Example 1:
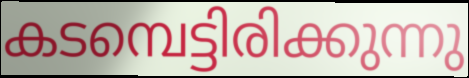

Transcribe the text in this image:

കടമ്പെട്ടിരിക്കുന്നു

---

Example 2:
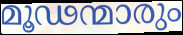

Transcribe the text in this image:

മൂഢന്മാരും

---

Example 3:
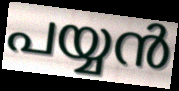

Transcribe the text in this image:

പയ്യൻ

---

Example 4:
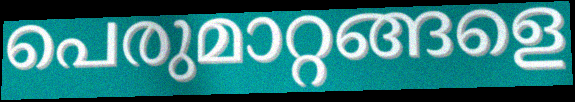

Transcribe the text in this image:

പെരുമാറ്റങ്ങളെ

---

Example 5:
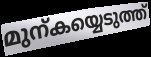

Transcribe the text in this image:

മുന്കയ്യെടുത്ത്